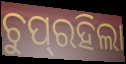
ଚୁପ୍‌ରହିଲା